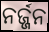
ନର୍ଜ୍ଜନ